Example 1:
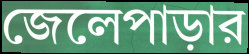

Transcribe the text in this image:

জেলেপাড়ার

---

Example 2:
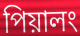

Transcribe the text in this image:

পিয়ালং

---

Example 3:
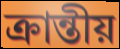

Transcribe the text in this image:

ক্রান্তীয়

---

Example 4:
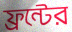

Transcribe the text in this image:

ফ্রন্টের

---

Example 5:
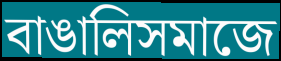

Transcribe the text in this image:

বাঙালিসমাজে